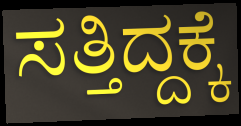
ಸತ್ತಿದ್ದಕ್ಕೆ